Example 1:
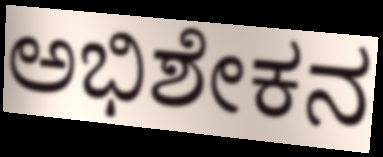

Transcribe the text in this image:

ಅಭಿಶೇಕನ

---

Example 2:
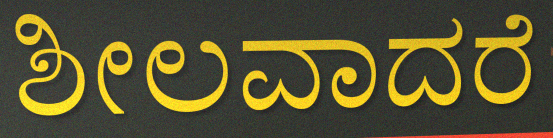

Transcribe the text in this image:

ಶೀಲವಾದರೆ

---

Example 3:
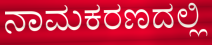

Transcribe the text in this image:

ನಾಮಕರಣದಲ್ಲಿ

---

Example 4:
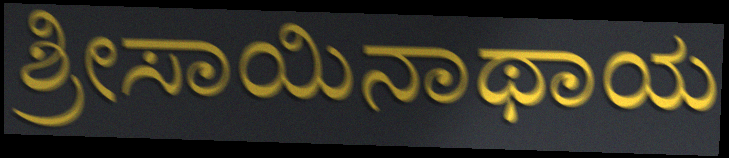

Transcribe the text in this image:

ಶ್ರೀಸಾಯಿನಾಥಾಯ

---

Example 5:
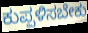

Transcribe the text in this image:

ಕುಪ್ಪಳಿಸಬೇಕು